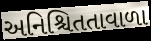
અનિશ્ચિતતાવાળા